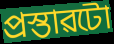
প্ৰস্তাৱটো